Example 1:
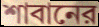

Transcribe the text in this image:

শাবানের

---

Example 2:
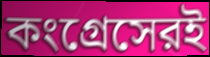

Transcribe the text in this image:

কংগ্রেসেরই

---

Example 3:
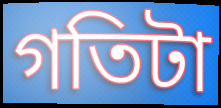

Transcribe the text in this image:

গতিটা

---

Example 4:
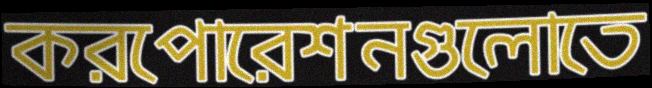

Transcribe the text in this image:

করপোরেশনগুলোতে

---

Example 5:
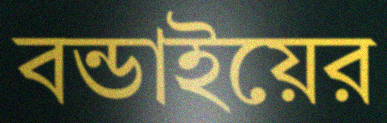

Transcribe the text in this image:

বন্ডাইয়ের